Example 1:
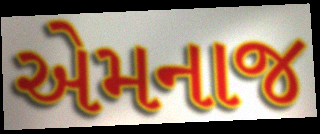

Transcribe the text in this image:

એમનાજ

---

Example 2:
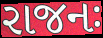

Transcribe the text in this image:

રાજનઃ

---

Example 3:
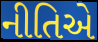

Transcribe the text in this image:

નીતિએ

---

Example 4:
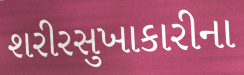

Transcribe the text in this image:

શરીરસુખાકારીના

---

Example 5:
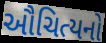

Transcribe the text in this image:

ઔચિત્યનો